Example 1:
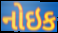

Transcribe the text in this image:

નોઇક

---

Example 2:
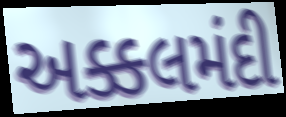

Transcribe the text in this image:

અક્કલમંદી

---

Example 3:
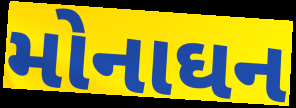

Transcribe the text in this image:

મોનાઘન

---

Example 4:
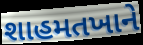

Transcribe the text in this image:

શાહમતખાને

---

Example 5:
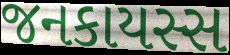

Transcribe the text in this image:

જનકાયસ્સ